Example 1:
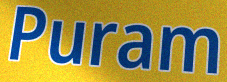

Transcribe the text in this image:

Puram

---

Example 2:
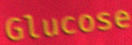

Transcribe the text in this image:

Glucose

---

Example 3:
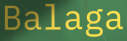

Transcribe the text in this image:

Balaga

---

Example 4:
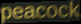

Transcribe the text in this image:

peacock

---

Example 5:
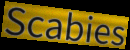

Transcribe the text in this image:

Scabies